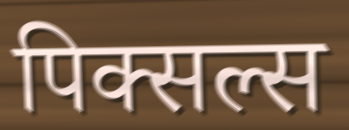
पिक्सल्स